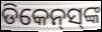
ଡିକେନ୍‌ସ୍‌ଙ୍କ